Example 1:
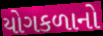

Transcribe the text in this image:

યોગકળાનો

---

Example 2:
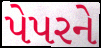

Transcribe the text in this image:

પેપરને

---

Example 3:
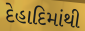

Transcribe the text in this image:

દેહાદિમાંથી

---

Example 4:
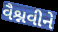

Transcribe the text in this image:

વૈશ્નવીને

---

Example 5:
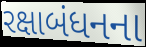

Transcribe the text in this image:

રક્ષાબંધનના